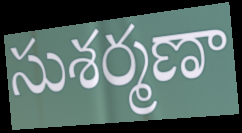
సుశర్మణా